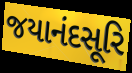
જયાનંદસૂરિ